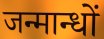
जन्मान्धों